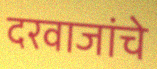
दरवाजांचे